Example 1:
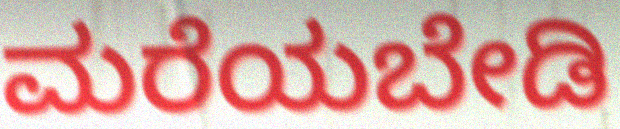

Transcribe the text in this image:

ಮರೆಯಬೇಡಿ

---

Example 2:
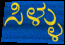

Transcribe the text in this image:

ಸಿಳ್ಳು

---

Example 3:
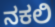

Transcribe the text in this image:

ನಕಲಿ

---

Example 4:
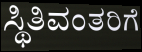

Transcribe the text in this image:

ಸ್ಥಿತಿವಂತರಿಗೆ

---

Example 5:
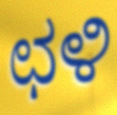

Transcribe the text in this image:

ಛಳಿ